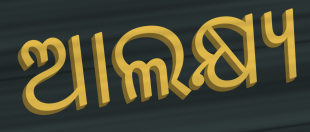
ଆଲକ୍ଷ୍ୟ